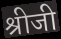
श्रीजी